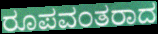
ರೂಪವಂತರಾದ